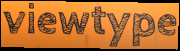
viewtype